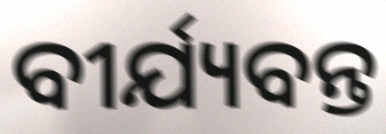
ବୀର୍ଯ୍ୟବନ୍ତ